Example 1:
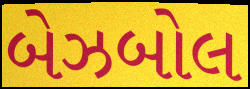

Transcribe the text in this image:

બેઝબોલ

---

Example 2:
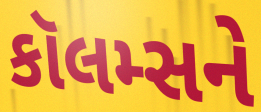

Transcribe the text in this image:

કૉલમ્સને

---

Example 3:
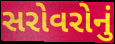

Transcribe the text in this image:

સરોવરોનું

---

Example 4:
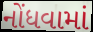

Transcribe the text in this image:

નોંધવામાં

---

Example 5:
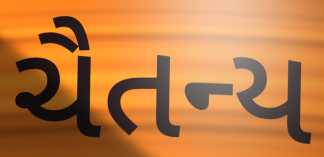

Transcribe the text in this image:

ચૈતન્ય